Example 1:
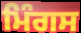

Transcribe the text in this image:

ਮਿੰਗਸ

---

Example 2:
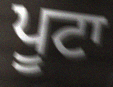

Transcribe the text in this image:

ਪੂਟਾ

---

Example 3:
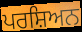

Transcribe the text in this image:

ਪਰਸ਼ਿਅਨ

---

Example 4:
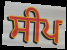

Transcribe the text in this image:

ਸੀਪ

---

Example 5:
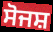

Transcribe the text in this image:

ਸੋਜਸ਼